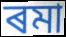
ৰমা